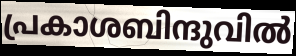
പ്രകാശബിന്ദുവിൽ